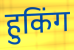
हुकिंग